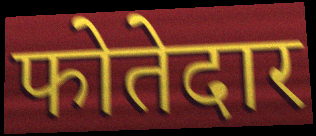
फोतेदार